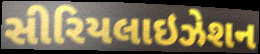
સીરિયલાઇઝેશન